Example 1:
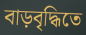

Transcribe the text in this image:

বাড়বৃদ্ধিতে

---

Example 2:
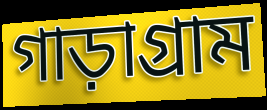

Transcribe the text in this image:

গাড়াগ্রাম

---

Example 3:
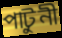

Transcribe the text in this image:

পাটুনী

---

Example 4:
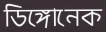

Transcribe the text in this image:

ডিঙ্গোনেক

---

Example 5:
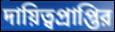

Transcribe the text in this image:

দায়িত্বপ্রাপ্তির